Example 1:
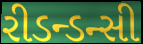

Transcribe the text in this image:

રીડન્ડન્સી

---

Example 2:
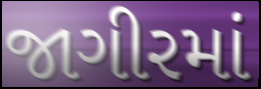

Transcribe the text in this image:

જાગીરમાં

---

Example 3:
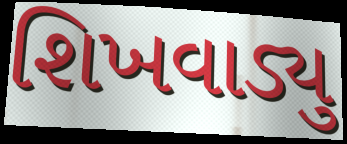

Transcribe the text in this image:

શિખવાડ્યુ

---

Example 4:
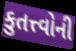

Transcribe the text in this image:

કુતત્ત્વોની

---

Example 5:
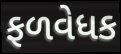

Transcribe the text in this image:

ફળવેધક